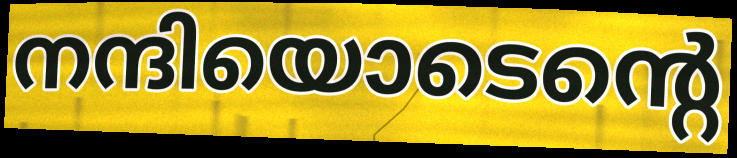
നന്ദിയൊടെന്റെ